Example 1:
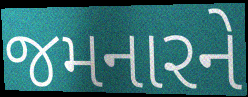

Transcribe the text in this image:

જમનારને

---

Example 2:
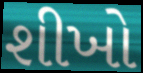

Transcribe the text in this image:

શીખો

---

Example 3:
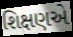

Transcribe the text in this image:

શિક્ષણએ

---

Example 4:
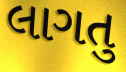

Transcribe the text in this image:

લાગતુ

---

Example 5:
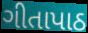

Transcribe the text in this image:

ગીતાપાઠ